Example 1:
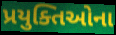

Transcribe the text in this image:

પ્રયુક્તિઓના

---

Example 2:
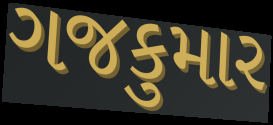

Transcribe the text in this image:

ગજકુમાર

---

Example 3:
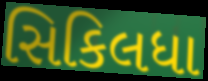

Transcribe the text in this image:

સિકિલધા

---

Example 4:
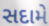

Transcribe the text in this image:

સદામે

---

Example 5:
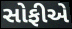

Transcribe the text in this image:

સોફીએ